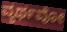
ವ್ಯರ್ಥವೋ